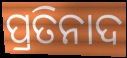
ପ୍ରତିନାଦ